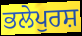
ਭਲੇਪੁਰਸ਼